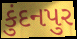
કુંદનપુર